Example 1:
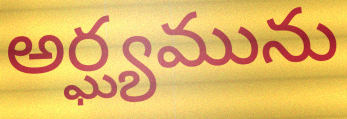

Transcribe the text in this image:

అర్ఘ్యమును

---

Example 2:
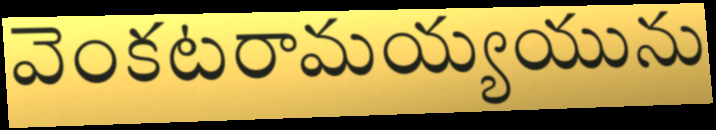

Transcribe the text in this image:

వెంకటరామయ్యయును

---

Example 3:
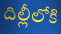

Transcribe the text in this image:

దిల్లీలోకి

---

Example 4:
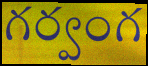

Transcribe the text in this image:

గర్వంగ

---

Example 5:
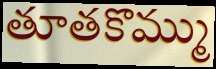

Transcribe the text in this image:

తూతకొమ్ము